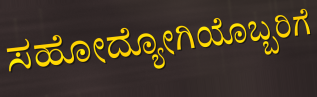
ಸಹೋದ್ಯೋಗಿಯೊಬ್ಬರಿಗೆ